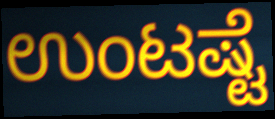
ಉಂಟಷ್ಟೆ